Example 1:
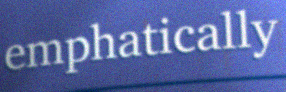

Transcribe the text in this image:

emphatically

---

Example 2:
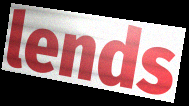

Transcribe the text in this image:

lends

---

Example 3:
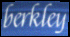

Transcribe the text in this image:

berkley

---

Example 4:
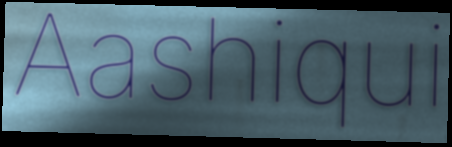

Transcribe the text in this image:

Aashiqui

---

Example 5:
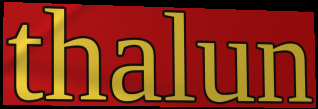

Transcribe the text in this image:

thalun